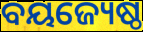
ବୟଜ୍ୟେଷ୍ଠ